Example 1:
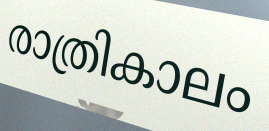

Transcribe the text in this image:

രാത്രികാലം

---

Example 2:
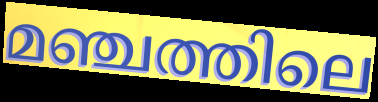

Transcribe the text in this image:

മഞ്ചത്തിലെ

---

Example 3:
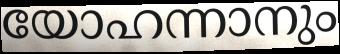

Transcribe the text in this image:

യോഹന്നാനും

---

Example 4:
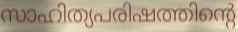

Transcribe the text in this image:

സാഹിത്യപരിഷത്തിന്റെ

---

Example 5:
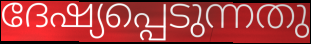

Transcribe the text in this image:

ദേഷ്യപ്പെടുന്നതു